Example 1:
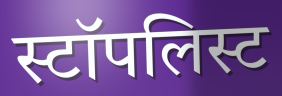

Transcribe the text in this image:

स्टॉपलिस्ट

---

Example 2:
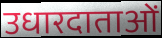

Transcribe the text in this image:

उधारदाताओं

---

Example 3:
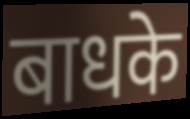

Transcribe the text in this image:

बाधके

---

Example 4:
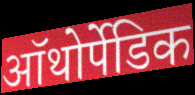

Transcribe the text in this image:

ऑथोर्पेडिक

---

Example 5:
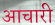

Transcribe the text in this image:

आचारी